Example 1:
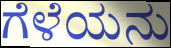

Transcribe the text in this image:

ಗೆಳೆಯನು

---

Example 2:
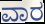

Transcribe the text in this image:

ವಾರ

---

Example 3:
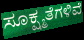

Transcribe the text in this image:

ಸೂಕ್ಷ್ಮತೆಗಳಿವೆ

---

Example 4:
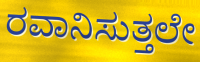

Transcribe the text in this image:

ರವಾನಿಸುತ್ತಲೇ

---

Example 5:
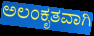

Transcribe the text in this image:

ಅಲಂಕೃತವಾಗಿ